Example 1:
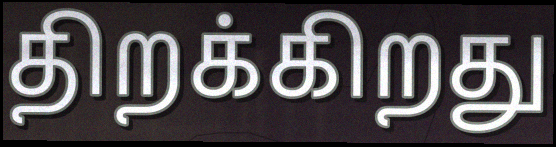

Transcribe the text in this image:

திறக்கிறது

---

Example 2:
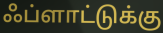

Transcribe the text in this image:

ஃப்ளாட்டுக்கு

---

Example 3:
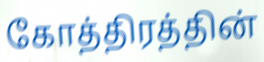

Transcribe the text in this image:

கோத்திரத்தின்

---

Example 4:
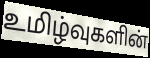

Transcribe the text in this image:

உமிழ்வுகளின்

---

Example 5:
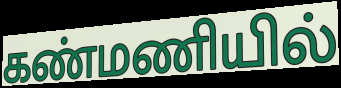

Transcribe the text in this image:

கண்மணியில்